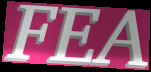
FEA